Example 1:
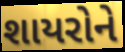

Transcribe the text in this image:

શાયરોને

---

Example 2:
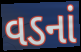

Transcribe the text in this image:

વડનાં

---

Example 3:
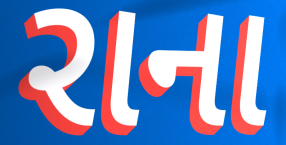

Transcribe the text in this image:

રાના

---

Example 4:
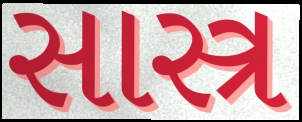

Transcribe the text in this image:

સાસ્ત્ર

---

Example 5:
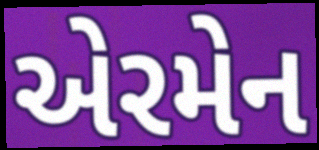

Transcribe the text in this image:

એરમેન